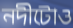
নদীটোও